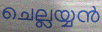
ചെല്ലയ്യൻ